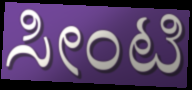
ಸೀಂಟಿ